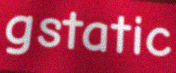
gstatic